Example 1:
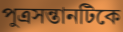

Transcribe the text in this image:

পুত্রসন্তানটিকে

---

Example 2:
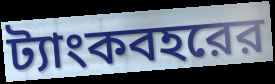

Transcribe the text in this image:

ট্যাংকবহরের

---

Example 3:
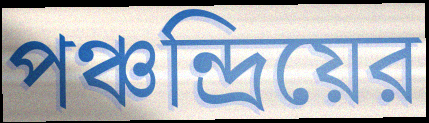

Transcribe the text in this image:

পঞ্চন্দ্রিয়ের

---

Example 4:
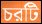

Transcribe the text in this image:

চরটি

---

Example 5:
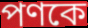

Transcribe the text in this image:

পণকে